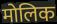
मोलिक